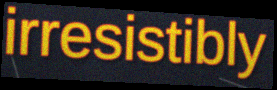
irresistibly